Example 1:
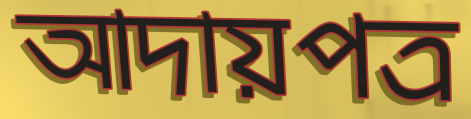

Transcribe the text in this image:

আদায়পত্র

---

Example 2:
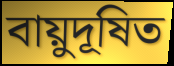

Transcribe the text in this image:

বায়ুদূষিত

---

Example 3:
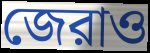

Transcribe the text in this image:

জেরাও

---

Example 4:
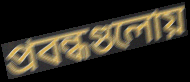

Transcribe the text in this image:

প্রবন্ধগুলোয়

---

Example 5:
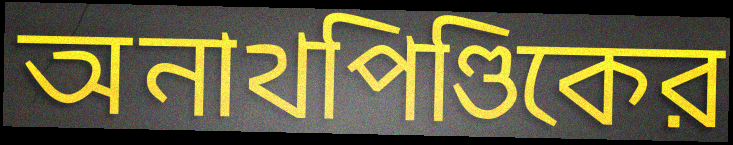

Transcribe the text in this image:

অনাথপিণ্ডিকের